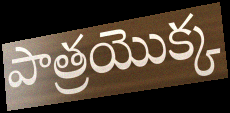
పాత్రయొక్క